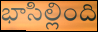
భాసిల్లింది